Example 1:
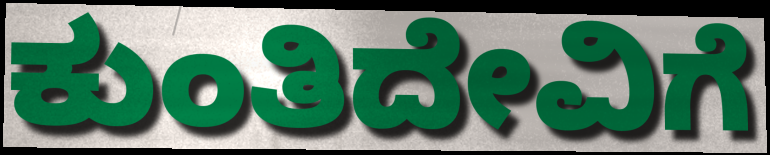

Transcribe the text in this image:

ಕುಂತಿದೇವಿಗೆ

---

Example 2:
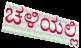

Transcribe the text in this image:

ಚಳಿಯಲ್ಲಿ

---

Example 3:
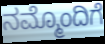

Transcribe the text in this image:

ನಮ್ಮೊಂದಿಗೆ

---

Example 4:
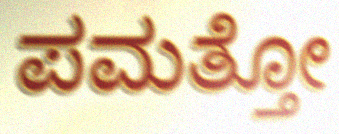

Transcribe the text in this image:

ಪಮತ್ತೋ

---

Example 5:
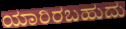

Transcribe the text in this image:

ಯಾರಿರಬಹುದು